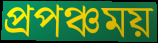
প্রপঞ্চময়